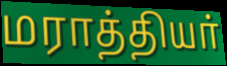
மராத்தியர்